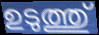
ഉടുത്തു്